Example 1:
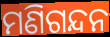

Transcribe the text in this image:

ମଣିଗନ୍ଦନ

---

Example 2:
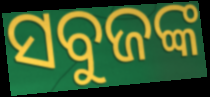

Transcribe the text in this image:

ସବୁଜଙ୍କ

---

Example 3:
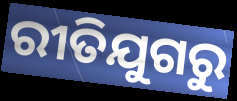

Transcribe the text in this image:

ରୀତିଯୁଗରୁ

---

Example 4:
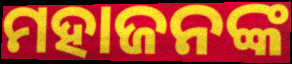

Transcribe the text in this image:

ମହାଜନଙ୍କ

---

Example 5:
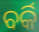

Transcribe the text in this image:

ବର୍କି